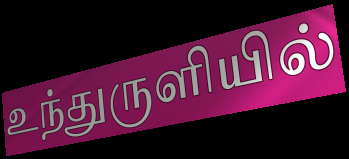
உந்துருளியில்